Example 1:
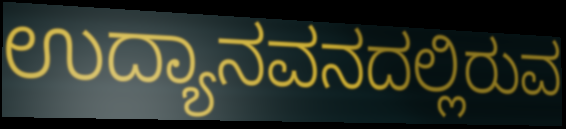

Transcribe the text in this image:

ಉದ್ಯಾನವನದಲ್ಲಿರುವ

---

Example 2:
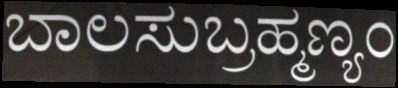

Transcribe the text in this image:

ಬಾಲಸುಬ್ರಹ್ಮಣ್ಯಂ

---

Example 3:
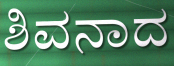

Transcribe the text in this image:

ಶಿವನಾದ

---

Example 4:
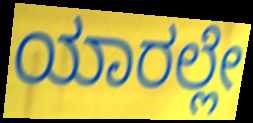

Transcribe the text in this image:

ಯಾರಲ್ಲೇ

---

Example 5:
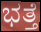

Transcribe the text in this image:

ಭತ್ತೆ